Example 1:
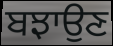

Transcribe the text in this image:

ਬਝਾਉਣ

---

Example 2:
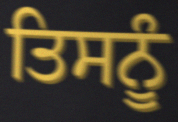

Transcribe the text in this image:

ਤਿਸਨੂੰ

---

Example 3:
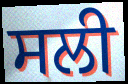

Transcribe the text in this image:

ਸਲੀ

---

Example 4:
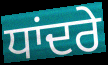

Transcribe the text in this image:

ਧਾਂਦਰੇ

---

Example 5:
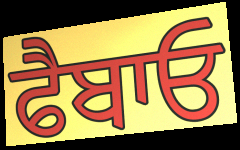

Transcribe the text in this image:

ਫੈਬਾਓ